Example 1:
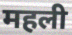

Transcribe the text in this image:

महली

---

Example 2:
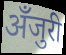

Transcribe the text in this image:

अँजुरी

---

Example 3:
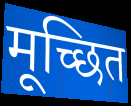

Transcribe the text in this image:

मूच्छित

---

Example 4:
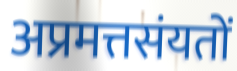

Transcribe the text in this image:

अप्रमत्तसंयतों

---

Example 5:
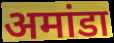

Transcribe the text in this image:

अमांडा